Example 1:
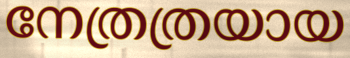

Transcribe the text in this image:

നേത്രത്രയായ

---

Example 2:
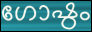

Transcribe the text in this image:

ഗോഷ്ഠം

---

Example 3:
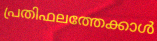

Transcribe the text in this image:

പ്രതിഫലത്തേക്കാൾ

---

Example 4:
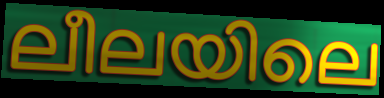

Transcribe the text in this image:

ലീലയിലെ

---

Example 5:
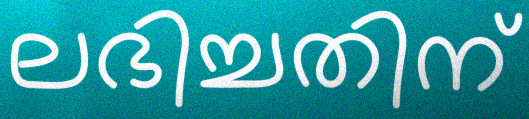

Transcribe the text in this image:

ലഭിച്ചതിന്